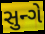
સુન્ગે